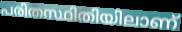
പരിതസ്ഥിതിയിലാണ്